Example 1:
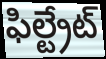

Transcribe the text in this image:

ఫిల్ట్రేట్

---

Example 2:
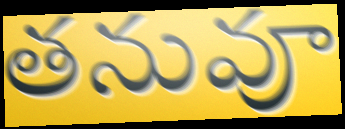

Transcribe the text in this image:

తనువూ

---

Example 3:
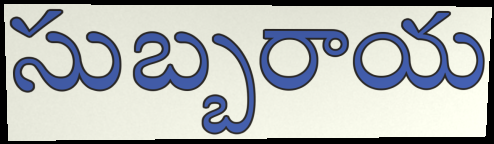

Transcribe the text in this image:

సుబ్బరాయ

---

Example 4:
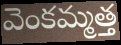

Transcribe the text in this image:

వెంకమ్మత్త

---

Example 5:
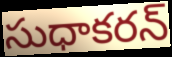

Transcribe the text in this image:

సుధాకరన్